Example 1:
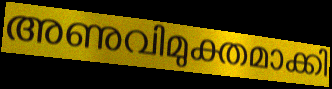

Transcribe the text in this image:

അണുവിമുക്തമാക്കി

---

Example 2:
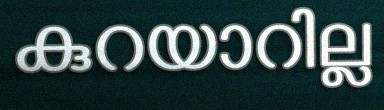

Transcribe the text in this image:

കുറയാറില്ല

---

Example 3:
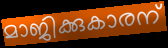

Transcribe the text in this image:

മാജിക്കുകാരന്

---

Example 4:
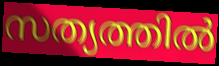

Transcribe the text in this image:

സത്യത്തിൽ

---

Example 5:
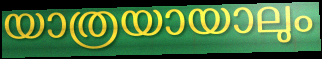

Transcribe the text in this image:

യാത്രയായാലും